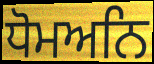
ਧੋਮਅਨਿ